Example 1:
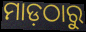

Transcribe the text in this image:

ମାଡ଼ଠାରୁ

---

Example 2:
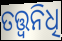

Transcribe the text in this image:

ତତ୍ତ୍ଵନିଧି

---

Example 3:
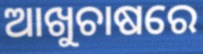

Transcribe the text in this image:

ଆଖୁଚାଷରେ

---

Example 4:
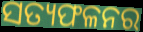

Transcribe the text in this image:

ସତ୍ୟଫଳନର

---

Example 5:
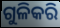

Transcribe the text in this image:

ଗୁଳିକରି